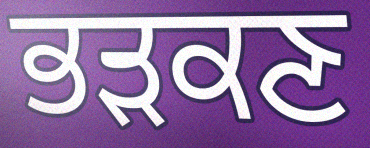
ਭੜਕਣ